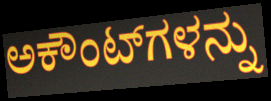
ಅಕೌಂಟ್‌ಗಳನ್ನು